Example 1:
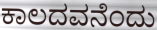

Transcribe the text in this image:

ಕಾಲದವನೆಂದು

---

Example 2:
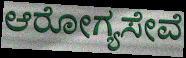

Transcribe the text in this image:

ಆರೋಗ್ಯಸೇವೆ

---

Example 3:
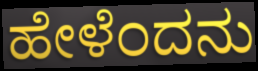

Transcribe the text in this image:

ಹೇಳೆಂದನು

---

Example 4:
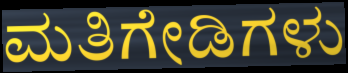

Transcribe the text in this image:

ಮತಿಗೇಡಿಗಳು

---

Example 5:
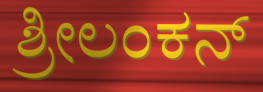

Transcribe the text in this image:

ಶ್ರೀಲಂಕನ್